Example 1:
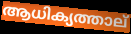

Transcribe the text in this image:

ആധിക്യത്താല്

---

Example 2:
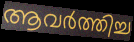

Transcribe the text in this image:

ആവർത്തിച്ച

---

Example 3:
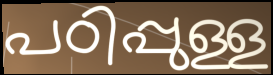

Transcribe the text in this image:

പഠിപ്പുള്ള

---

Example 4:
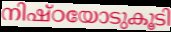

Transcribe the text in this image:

നിഷ്ഠയോടുകൂടി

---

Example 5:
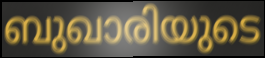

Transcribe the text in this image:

ബുഖാരിയുടെ